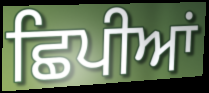
ਛਿਪੀਆਂ